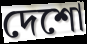
দেশো